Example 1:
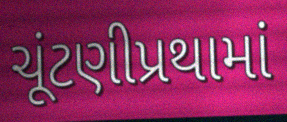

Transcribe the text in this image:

ચૂંટણીપ્રથામાં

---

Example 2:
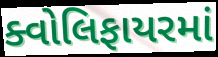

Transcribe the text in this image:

ક્વોલિફાયરમાં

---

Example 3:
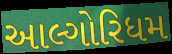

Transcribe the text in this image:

આલ્ગોરિધમ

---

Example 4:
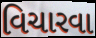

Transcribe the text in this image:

વિચારવા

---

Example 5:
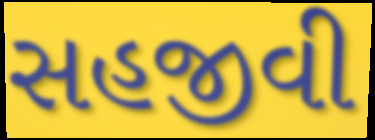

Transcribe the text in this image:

સહજીવી